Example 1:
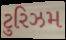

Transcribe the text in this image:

ટુરિઝમ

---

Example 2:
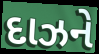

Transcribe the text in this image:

દાઝને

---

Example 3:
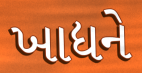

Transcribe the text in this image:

ખાદ્યને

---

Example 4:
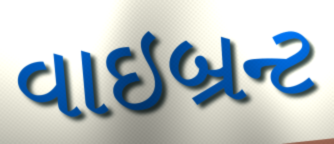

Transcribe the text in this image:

વાઇબ્રન્ટ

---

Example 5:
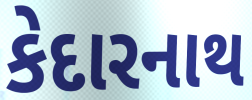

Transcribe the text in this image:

કેદારનાથ